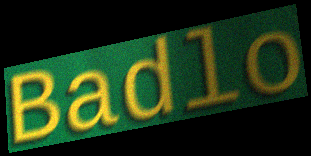
Badlo